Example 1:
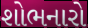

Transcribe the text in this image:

શોભનારો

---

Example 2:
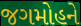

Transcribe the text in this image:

જગમોહને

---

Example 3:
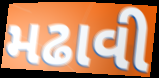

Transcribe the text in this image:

મઢાવી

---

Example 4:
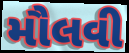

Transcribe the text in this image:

મૌલવી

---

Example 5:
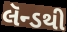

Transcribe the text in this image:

લૅન્ડથી